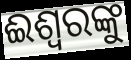
ଈଶ୍ଵରଙ୍କୁ